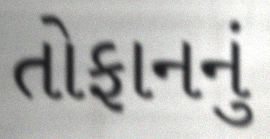
તોફાનનું